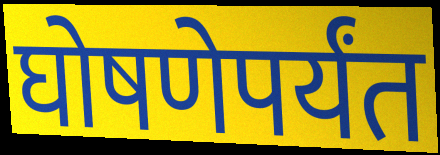
घोषणेपर्यंत